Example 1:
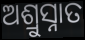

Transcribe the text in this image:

ଅଶ୍ରୁସ୍ନାତ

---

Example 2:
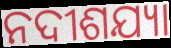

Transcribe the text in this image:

ନଦୀଶଯ୍ୟା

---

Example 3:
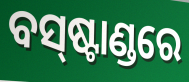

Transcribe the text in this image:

ବସ୍‌ଷ୍ଟାଣ୍ଡରେ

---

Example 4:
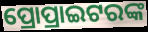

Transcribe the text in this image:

ପ୍ରୋପ୍ରାଇଟରଙ୍କ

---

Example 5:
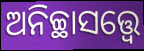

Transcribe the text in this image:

ଅନିଚ୍ଛାସତ୍ତ୍ବେ